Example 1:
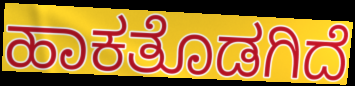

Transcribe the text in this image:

ಹಾಕತೊಡಗಿದೆ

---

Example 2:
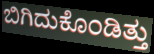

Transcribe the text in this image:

ಬಿಗಿದುಕೊಂಡಿತ್ತು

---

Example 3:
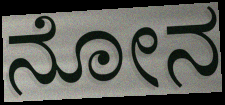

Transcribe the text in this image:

ನೋನ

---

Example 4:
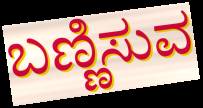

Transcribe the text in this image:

ಬಣ್ಣಿಸುವ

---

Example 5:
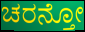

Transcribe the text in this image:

ಚರನ್ತೋ